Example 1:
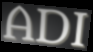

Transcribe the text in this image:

ADI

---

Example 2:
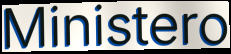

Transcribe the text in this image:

Ministero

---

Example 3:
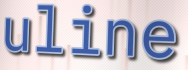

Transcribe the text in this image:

uline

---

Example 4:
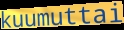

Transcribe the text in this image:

kuumuttai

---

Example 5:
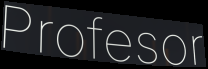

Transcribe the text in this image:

Profesor